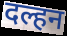
दल्हन